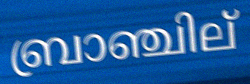
ബ്രാഞ്ചില്